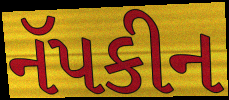
નૅપકીન